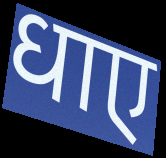
धाए